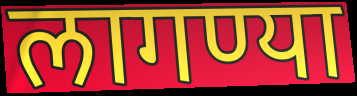
लागण्या